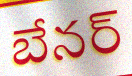
బేనర్